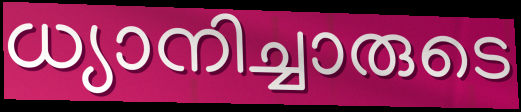
ധ്യാനിച്ചാരുടെ